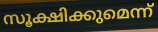
സൂക്ഷിക്കുമെന്ന്